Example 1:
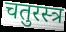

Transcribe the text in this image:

चतुरस्त्र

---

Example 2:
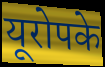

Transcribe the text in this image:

यूरोपके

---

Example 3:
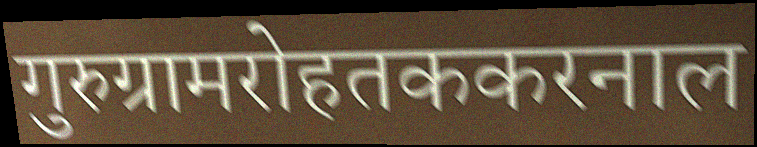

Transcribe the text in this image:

गुरुग्रामरोहतककरनाल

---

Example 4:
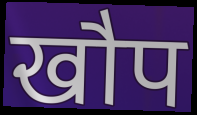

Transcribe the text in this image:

खौप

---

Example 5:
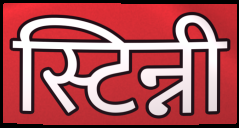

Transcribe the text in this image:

स्टिन्नी